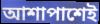
আশাপাশেই